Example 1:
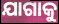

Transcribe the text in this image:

ଯାଗାକୁ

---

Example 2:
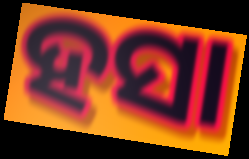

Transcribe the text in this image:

ହସା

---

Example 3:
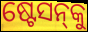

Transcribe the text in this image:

ଷ୍ଟେସନ୍‍କୁ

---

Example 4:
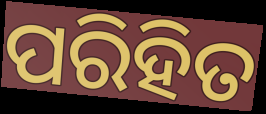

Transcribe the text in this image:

ପରିହିତ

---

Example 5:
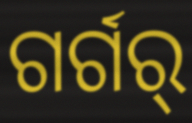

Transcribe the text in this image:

ଗର୍ଗର୍